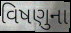
વિષણુના